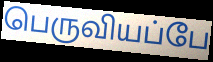
பெருவியப்பே